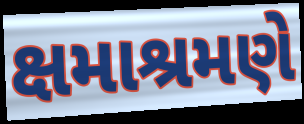
ક્ષમાશ્રમણે